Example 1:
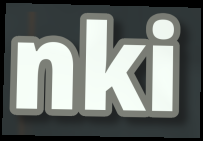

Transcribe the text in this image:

nki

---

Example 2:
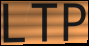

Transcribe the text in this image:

LTP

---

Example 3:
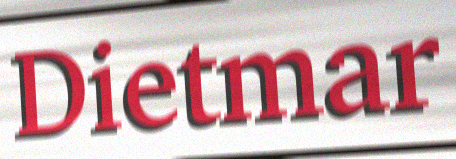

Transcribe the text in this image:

Dietmar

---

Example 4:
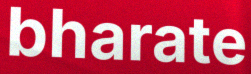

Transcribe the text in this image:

bharate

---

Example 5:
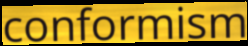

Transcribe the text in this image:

conformism